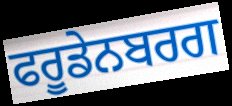
ਫਰੂਡੇਨਬਰਗ